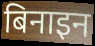
बिनाइन